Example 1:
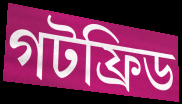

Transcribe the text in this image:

গটফ্রিড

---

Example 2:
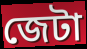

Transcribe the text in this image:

জেটা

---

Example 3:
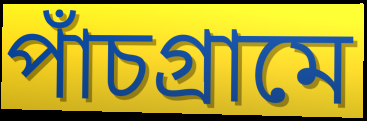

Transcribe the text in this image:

পাঁচগ্রামে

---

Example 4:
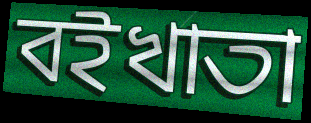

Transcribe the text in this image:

বইখাতা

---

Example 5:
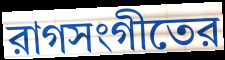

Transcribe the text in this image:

রাগসংগীতের